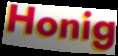
Honig